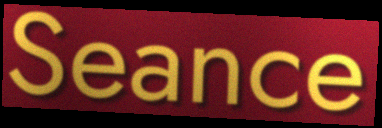
Seance